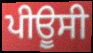
ਪੀਊਸੀ